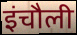
इंचौली